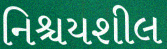
નિશ્ચયશીલ